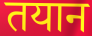
तयान